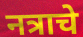
नत्राचे